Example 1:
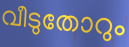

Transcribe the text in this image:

വീടുതോറും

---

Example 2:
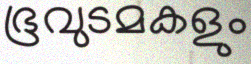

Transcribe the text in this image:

ഭൂവുടമകളും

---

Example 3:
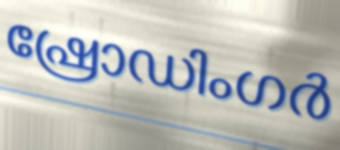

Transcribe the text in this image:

ഷ്രോഡിംഗർ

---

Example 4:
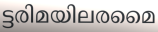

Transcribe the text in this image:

ട്ടരിമയിലരമൈ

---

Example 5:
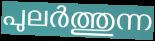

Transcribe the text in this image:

പുലർത്തുന്ന